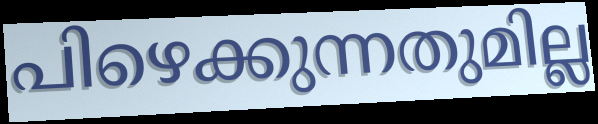
പിഴെക്കുന്നതുമില്ല